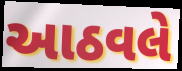
આઠવલે